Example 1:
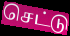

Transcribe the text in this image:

செட்டு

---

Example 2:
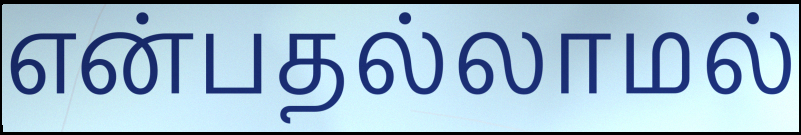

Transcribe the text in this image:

என்பதல்லாமல்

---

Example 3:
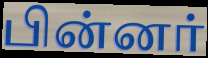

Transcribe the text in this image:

பின்னர்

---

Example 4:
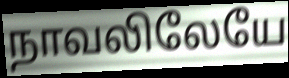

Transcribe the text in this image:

நாவலிலேயே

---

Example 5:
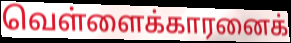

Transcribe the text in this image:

வெள்ளைக்காரனைக்